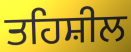
ਤਹਿਸ਼ੀਲ